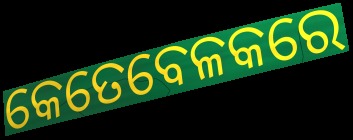
କେତେବେଳକରେ